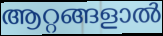
ആറ്റങ്ങളാൽ